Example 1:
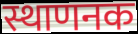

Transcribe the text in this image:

स्थाणनक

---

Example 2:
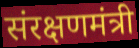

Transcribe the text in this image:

संरक्षणमंत्री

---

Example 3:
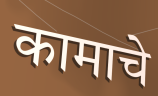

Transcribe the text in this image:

कामाचे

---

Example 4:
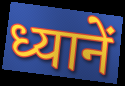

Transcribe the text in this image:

ध्यानें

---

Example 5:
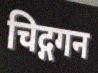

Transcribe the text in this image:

चिद्गगन